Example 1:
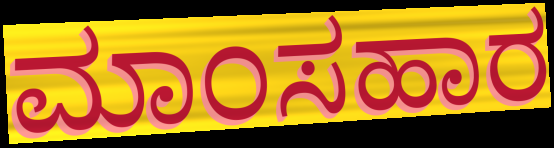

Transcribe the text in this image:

ಮಾಂಸಹಾರ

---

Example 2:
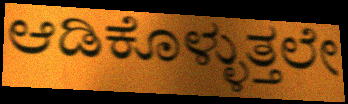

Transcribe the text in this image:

ಆಡಿಕೊಳ್ಳುತ್ತಲೇ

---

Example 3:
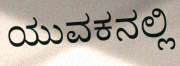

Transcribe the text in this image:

ಯುವಕನಲ್ಲಿ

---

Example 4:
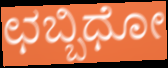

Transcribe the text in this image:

ಛಬ್ಬಿಧೋ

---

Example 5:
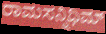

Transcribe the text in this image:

ರಾಮಸನ್ನಿಧಿಮ್